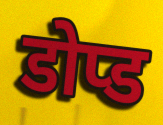
डोप्ड